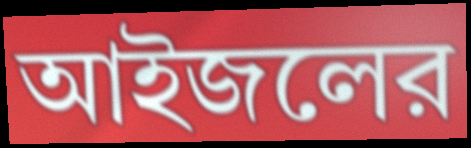
আইজলের